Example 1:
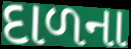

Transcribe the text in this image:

દાળના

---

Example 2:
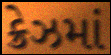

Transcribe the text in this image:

ક્રેઝમાં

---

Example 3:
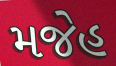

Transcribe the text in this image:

મજેહ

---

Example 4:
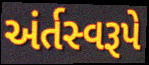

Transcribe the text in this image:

અંર્તસ્વરૂપે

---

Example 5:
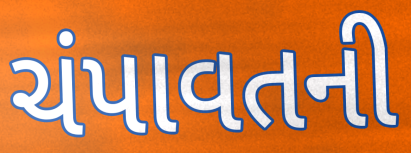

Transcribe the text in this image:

ચંપાવતની